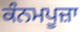
ਕੰਨਮਪੂਜ਼ਾ